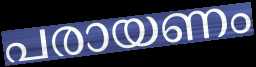
പരായണം